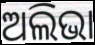
ଅଲିଭା